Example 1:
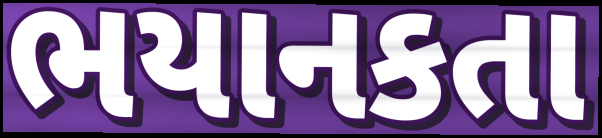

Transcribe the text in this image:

ભયાનકતા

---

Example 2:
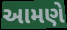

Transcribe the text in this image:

આમણે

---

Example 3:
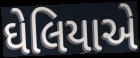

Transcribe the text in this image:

ઘેલિયાએ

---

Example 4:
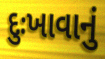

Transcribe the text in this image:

દુઃખાવાનું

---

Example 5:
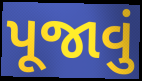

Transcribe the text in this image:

પૂજાવું